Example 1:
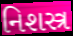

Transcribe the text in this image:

નિશસ્ત્ર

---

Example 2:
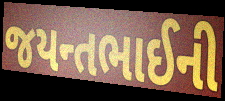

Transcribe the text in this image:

જયન્તભાઈની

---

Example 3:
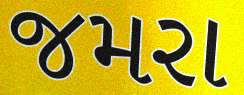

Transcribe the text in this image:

જમરા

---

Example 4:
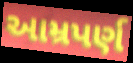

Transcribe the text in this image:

આમ્રપર્ણ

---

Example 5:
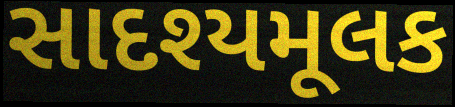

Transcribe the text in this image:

સાદશ્યમૂલક